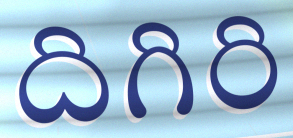
దిగిరి